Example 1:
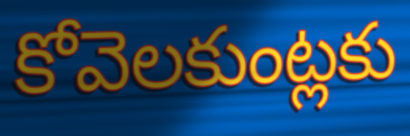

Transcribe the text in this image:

కోవెలకుంట్లకు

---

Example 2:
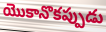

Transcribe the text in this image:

యొకానొకప్పుడు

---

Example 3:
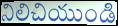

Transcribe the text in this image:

నిలిచియుండి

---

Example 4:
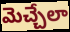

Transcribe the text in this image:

మెచ్చేలా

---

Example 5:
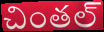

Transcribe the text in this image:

చింతల్